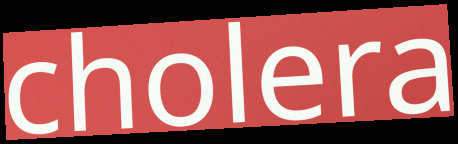
cholera